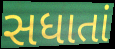
સધાતાં